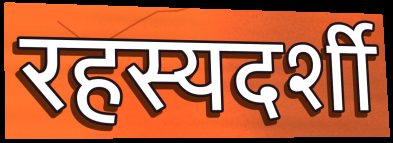
रहस्यदर्शी